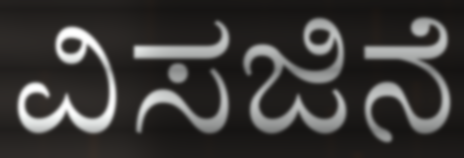
ವಿಸಜಿನೆ